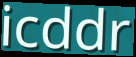
icddr